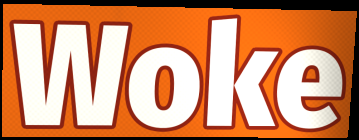
Woke